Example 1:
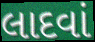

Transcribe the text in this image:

લાદવાં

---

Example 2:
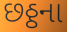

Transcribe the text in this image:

છઠ્ઠના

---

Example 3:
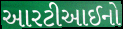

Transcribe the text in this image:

આરટીઆઈનો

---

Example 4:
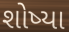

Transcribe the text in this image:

શોષ્યા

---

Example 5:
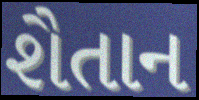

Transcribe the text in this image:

શૈતાન